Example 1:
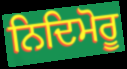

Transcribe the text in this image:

ਨਿਦਿਮੋਰੂ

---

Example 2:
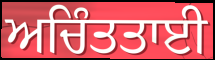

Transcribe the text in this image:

ਅਚਿੰਤਤਾਈ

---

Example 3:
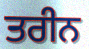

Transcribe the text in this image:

ਤਰੀਨ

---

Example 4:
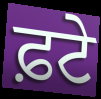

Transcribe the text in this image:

ਫ਼ਟੇ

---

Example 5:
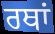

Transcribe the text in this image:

ਰਥਾਂ